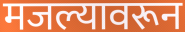
मजल्यावरून